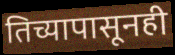
तिच्यापासूनही